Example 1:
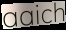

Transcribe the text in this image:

aaich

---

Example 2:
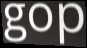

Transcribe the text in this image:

gop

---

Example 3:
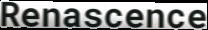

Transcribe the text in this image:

Renascence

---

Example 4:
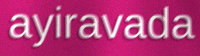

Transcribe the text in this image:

ayiravada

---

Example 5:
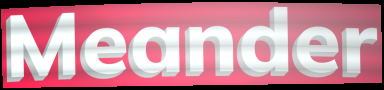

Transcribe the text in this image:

Meander